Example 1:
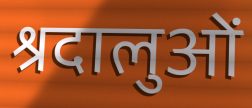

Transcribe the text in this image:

श्रदालुओं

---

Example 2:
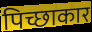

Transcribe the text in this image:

पिच्छाकार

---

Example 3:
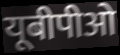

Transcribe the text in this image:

यूबीपीओ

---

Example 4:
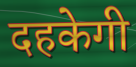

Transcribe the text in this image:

दहकेगी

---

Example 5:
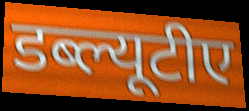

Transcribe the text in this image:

डब्ल्यूटीए